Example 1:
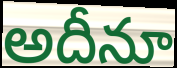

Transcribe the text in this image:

అదీనూ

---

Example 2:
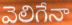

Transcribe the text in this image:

వెలిగేనా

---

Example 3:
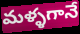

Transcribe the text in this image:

మళ్ళగానే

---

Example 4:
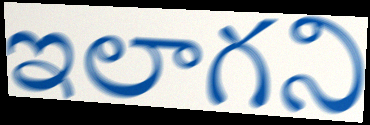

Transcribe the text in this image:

ఇలాగని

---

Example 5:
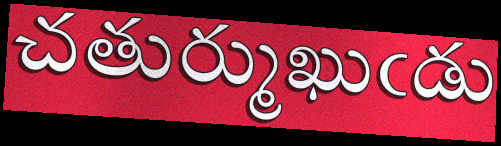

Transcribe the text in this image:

చతుర్ముఖుఁడు